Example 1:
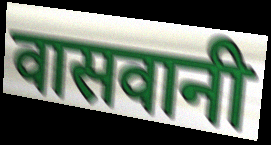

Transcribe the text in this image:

वासवानी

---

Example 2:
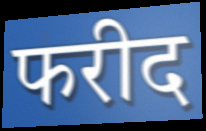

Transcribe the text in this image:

फरीद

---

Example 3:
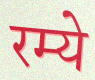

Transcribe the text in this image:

रम्ये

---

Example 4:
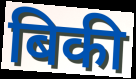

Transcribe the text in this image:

बिकी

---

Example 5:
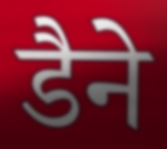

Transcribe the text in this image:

डैने